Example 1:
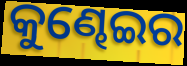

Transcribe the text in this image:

କୁଣ୍ଢେଇର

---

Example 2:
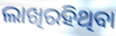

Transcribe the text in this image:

ଲାଖିରହିଥିବା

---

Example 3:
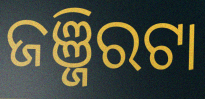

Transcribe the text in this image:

ଜଞ୍ଜିରଟା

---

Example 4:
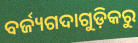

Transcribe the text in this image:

ବର୍ଜ୍ୟଗଦାଗୁଡ଼ିକରୁ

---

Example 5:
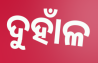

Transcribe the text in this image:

ଦୁହାଁଳ